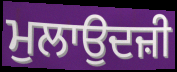
ਮੁਲਾਉਦਜ਼ੀ